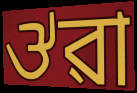
ঔৱা